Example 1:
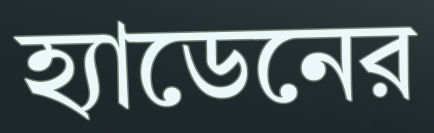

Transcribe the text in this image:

হ্যাডেনের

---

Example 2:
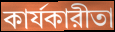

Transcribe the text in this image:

কার্যকারীতা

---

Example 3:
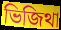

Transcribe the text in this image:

ভিজিথা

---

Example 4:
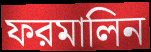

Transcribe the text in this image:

ফরমালিন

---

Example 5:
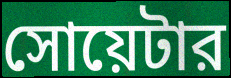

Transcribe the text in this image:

সোয়েটার